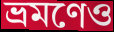
ভ্রমণেও